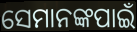
ସେମାନଙ୍କପାଇଁ